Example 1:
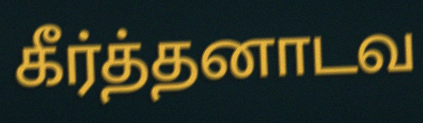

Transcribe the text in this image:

கீர்த்தனாடவ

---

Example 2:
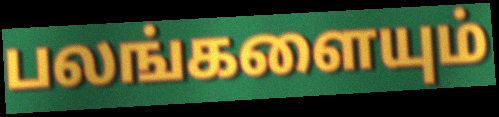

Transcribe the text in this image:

பலங்களையும்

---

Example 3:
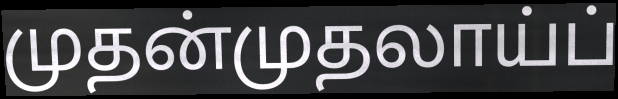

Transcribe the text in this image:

முதன்முதலாய்ப்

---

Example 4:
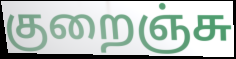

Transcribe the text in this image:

குறைஞ்சு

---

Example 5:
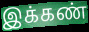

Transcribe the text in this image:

இக்கண்